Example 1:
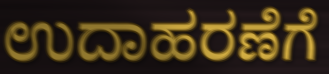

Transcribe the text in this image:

ಉದಾಹರಣೆಗೆ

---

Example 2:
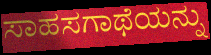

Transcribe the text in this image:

ಸಾಹಸಗಾಥೆಯನ್ನು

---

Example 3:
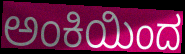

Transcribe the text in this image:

ಅಂಕಿಯಿಂದ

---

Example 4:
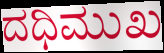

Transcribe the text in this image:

ದಧಿಮುಖ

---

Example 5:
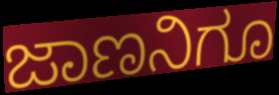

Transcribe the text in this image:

ಜಾಣನಿಗೂ